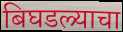
बिघडल्याचा